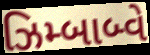
ઝિમ્બાબ્વે